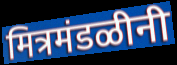
मित्रमंडळीनी